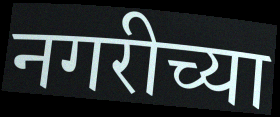
नगरीच्या